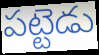
పట్టెడు